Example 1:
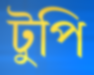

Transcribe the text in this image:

টুপি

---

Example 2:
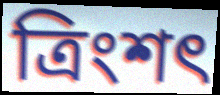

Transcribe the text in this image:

ত্ৰিংশৎ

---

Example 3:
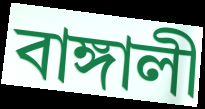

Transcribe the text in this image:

বাঙ্গালী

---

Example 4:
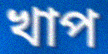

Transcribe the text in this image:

খাপ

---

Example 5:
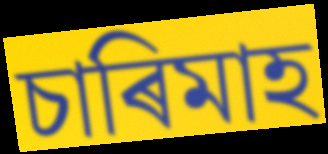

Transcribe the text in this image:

চাৰিমাহ